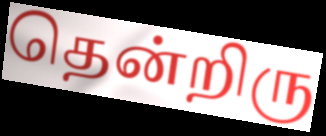
தென்றிரு